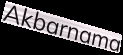
Akbarnama